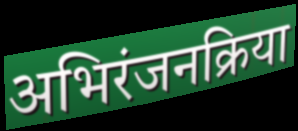
अभिरंजनक्रिया